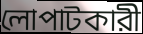
লোপাটকারী